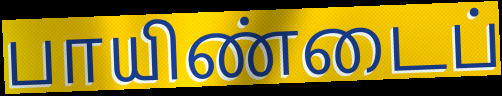
பாயிண்டைப்